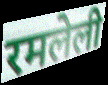
रमलेली